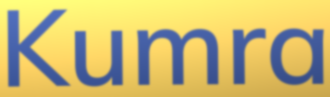
Kumra